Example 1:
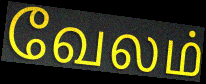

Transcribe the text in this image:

வேலம்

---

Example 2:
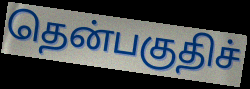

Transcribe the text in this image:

தென்பகுதிச்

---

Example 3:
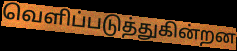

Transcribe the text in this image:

வெளிப்படுத்துகின்றன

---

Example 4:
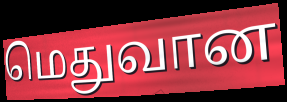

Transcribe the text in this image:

மெதுவான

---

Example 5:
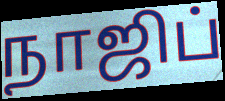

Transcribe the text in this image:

நாஜிப்